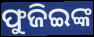
ଫୁଜିଇଙ୍କ